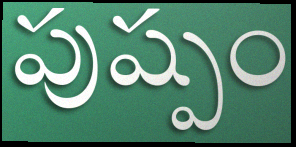
పుష్పం